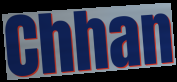
Chhan